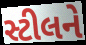
સ્ટીલને